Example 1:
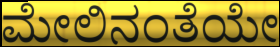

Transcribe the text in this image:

ಮೇಲಿನಂತೆಯೇ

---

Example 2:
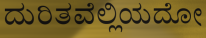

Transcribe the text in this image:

ದುರಿತವೆಲ್ಲಿಯದೋ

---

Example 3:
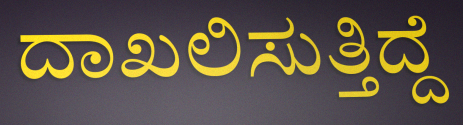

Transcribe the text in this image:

ದಾಖಲಿಸುತ್ತಿದ್ದೆ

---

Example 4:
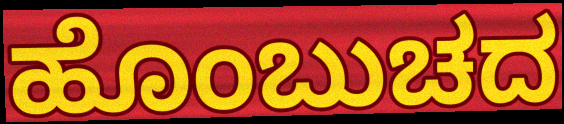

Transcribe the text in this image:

ಹೊಂಬುಚದ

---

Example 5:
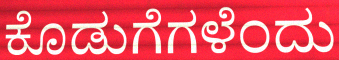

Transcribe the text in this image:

ಕೊಡುಗೆಗಳೆಂದು